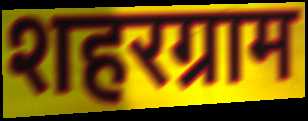
शहरग्राम